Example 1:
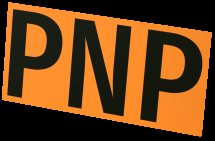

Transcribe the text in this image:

PNP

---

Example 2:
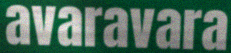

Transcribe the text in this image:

avaravara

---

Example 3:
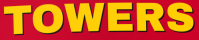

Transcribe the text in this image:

TOWERS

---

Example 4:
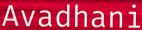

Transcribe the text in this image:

Avadhani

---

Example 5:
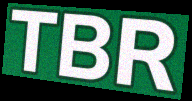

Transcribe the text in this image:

TBR